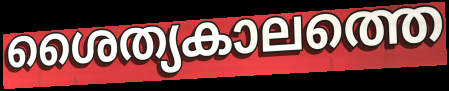
ശൈത്യകാലത്തെ